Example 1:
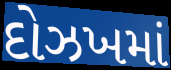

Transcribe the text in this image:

દોઝખમાં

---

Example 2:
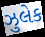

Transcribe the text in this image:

ઝુલેક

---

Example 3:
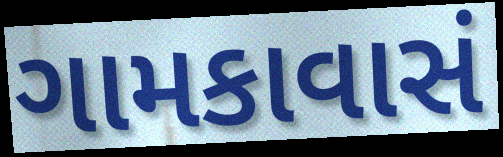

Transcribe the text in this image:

ગામકાવાસં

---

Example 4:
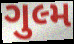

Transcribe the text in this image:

ગુલ્મ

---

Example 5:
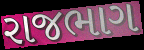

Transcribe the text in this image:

રાજભાગ